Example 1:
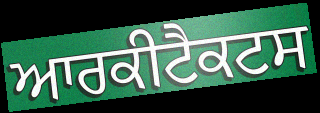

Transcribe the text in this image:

ਆਰਕੀਟੈਕਟਸ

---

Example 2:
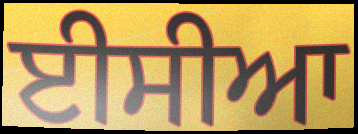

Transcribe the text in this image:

ਈਸੀਆ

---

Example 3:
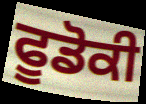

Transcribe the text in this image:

ਫੂਡੋਕੀ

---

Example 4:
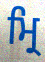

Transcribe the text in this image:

ਮ੍ਰਿ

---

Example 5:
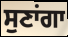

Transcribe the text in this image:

ਸੁਣਾਂਗਾ